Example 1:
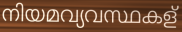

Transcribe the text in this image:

നിയമവ്യവസ്ഥകള്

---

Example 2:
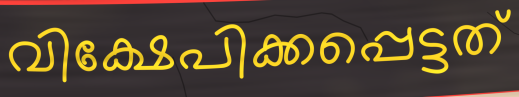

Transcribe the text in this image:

വിക്ഷേപിക്കപ്പെട്ടത്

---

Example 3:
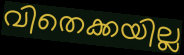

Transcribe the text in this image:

വിതെക്കയില്ല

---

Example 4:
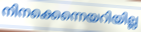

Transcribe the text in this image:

നിനക്കെന്നെയറിയില്ല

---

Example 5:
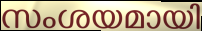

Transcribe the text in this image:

സംശയമായി